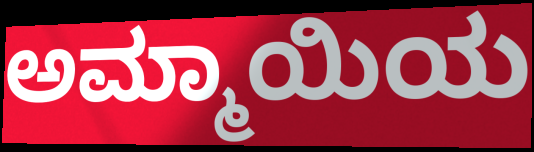
ಅಮ್ಮಾಯಿಯ